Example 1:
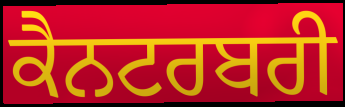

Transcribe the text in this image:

ਕੈਨਟਰਬਰੀ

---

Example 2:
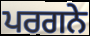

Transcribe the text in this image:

ਪਰਗਨੇ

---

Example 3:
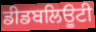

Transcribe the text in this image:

ਡੀਡਬਲਿਊਟੀ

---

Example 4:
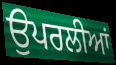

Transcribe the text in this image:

ਉਪਰਲੀਆਂ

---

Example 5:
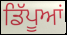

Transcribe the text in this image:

ਡਿੱਪੂਆਂ